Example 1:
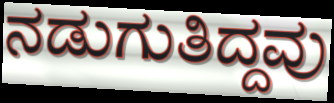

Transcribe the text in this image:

ನಡುಗುತಿದ್ದವು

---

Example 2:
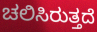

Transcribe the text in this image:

ಚಲಿಸಿರುತ್ತದೆ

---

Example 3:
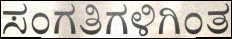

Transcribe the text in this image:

ಸಂಗತಿಗಳಿಗಿಂತ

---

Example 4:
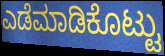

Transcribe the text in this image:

ಎಡೆಮಾಡಿಕೊಟ್ಟು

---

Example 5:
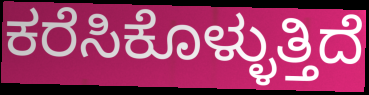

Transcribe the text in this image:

ಕರೆಸಿಕೊಳ್ಳುತ್ತಿದೆ